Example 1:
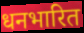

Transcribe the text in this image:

धनभारित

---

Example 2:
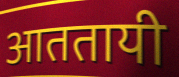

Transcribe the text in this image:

आततायी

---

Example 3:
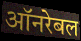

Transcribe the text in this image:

ऑनरेबल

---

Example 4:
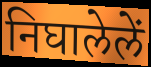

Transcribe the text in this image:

निघालेलें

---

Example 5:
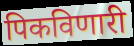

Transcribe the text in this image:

पिकविणारी